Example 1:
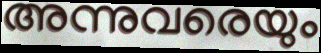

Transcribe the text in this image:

അന്നുവരെയും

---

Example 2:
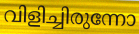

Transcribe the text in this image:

വിളിച്ചിരുന്നോ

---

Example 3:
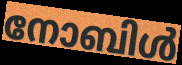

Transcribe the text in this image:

നോബിൾ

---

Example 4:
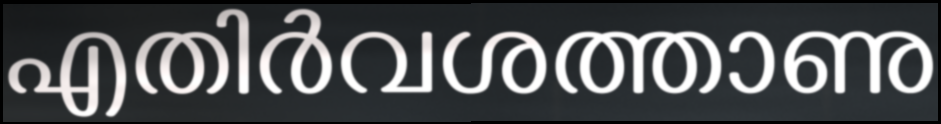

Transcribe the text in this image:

എതിർവശത്താണു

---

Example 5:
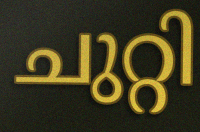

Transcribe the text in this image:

ചുറ്റി